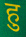
हु